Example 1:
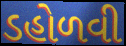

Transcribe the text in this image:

ડહોળવી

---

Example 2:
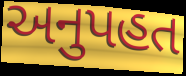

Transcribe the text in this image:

અનુપહત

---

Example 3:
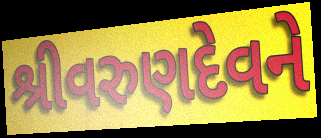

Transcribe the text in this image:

શ્રીવરુણદેવને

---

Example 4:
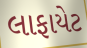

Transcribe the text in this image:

લાફાયેટ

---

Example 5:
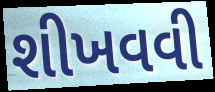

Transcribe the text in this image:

શીખવવી